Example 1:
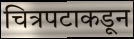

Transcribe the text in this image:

चित्रपटाकडून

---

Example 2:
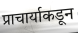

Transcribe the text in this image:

प्राचार्याकडून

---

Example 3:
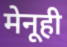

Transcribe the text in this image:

मेनूही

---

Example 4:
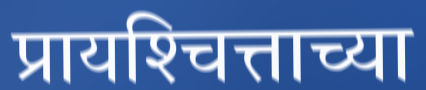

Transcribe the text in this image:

प्रायश्‍चित्ताच्या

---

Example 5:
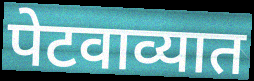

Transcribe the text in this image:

पेटवाव्यात